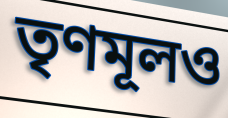
তৃণমূলও